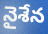
నైశేన